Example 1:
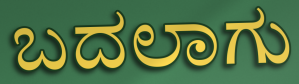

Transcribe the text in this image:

ಬದಲಾಗು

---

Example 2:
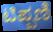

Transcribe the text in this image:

ಟಿಪ್ಪಣಿ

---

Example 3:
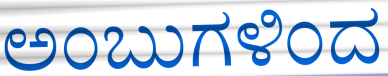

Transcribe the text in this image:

ಅಂಬುಗಳಿಂದ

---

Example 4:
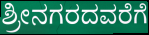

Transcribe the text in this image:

ಶ್ರೀನಗರದವರೆಗೆ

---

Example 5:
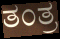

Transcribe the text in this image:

ತಂತ್ರ